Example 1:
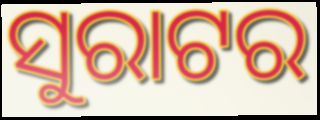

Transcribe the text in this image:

ସୁରାଟର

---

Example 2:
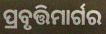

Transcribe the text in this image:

ପ୍ରବୃତ୍ତିମାର୍ଗର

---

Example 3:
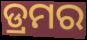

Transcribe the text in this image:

ଡ୍ରମର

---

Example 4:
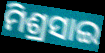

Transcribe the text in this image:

ମିଶ୍ରସାଇ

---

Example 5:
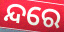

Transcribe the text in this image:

ନ୍ଦରେ